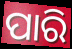
ପାରି